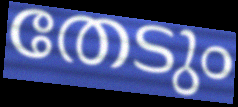
തേടും